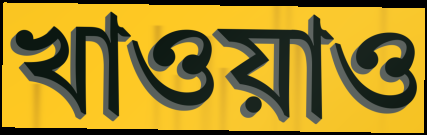
খাওয়াও